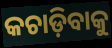
କଚାଡ଼ିବାକୁ